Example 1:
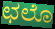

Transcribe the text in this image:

ಛಲೊ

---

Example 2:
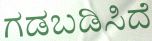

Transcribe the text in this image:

ಗಡಬಡಿಸಿದೆ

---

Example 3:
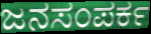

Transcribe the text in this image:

ಜನಸಂಪರ್ಕ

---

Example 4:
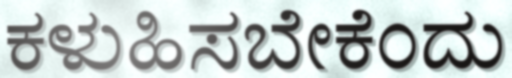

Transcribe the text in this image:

ಕಳುಹಿಸಬೇಕೆಂದು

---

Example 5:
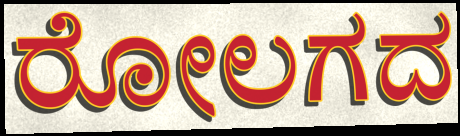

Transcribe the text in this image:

ರೋಲಗದ